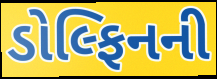
ડોલ્ફિનની